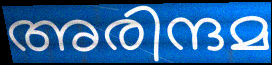
അരിന്ദമ